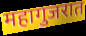
महागुजरात